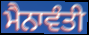
ਮੈਨਾਵੰਤੀ